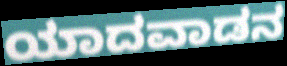
ಯಾದವಾಡನ